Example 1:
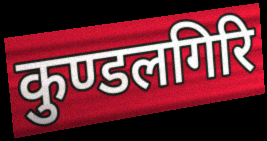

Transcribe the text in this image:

कुण्डलगिरि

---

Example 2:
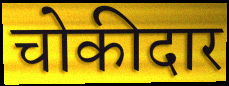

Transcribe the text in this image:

चोकीदार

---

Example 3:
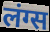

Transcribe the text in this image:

लंग्स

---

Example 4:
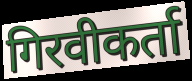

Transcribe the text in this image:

गिरवीकर्ता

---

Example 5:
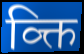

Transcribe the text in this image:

व्क्ति